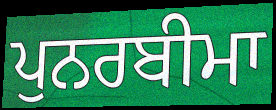
ਪੁਨਰਬੀਮਾ